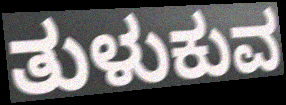
ತುಳುಕುವ